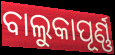
ବାଲୁକାପୂର୍ଣ୍ଣ